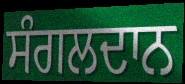
ਸੰਗਲਦਾਨ